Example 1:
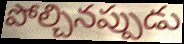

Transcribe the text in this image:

పోల్చినప్పుడు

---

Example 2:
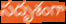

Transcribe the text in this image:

సదృశంగా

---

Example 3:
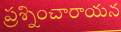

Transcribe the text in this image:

ప్రశ్నించారాయన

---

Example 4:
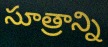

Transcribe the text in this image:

సూత్రాన్ని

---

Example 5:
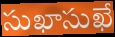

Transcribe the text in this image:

సుఖాసుఖే